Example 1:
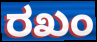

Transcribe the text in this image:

ರಖಂ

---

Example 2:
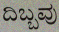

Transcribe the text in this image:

ದಿಬ್ಬವು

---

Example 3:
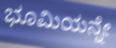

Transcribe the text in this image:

ಭೂಮಿಯನ್ನೇ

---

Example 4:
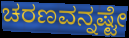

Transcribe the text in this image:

ಚರಣವನ್ನಷ್ಟೇ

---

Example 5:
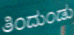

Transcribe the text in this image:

ತಿಂದುಂಡು